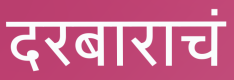
दरबाराचं